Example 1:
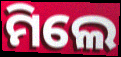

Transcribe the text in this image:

ମିଲେ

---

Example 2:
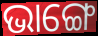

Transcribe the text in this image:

ଭାଙ୍ଗେ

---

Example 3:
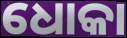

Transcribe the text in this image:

ଧୋକା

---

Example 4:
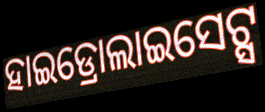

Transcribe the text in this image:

ହାଇଡ୍ରୋଲାଇସେଟ୍ସ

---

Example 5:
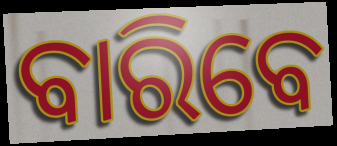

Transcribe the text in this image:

ବାରିବେ